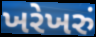
ખરેખરું